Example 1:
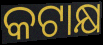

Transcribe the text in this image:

କଟାକ୍ଷ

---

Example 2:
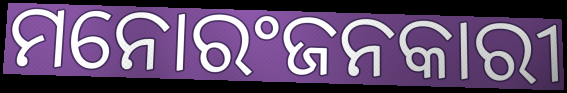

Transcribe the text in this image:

ମନୋରଂଜନକାରୀ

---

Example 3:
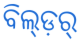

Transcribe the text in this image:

ବିଲ୍ଡ଼ର୍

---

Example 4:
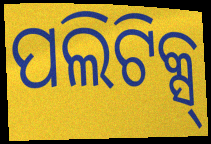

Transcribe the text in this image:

ପଲିଟିକ୍ସ୍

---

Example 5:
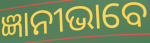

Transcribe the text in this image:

ଜ୍ଞାନୀଭାବେ